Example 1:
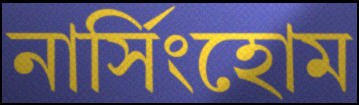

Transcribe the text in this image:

নার্সিংহোম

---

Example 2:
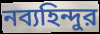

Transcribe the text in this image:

নব্যহিন্দুর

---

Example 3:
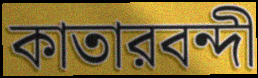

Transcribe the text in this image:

কাতারবন্দী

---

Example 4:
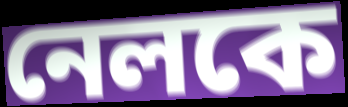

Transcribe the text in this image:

নেলকে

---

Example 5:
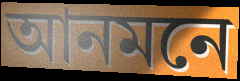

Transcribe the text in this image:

আনমনে